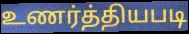
உணர்த்தியபடி